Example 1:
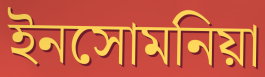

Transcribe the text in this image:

ইনসোমনিয়া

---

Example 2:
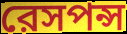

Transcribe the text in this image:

রেসপন্স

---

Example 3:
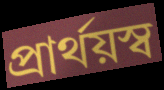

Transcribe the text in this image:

প্রার্থয়স্ব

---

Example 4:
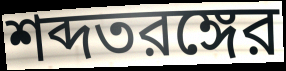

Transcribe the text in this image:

শব্দতরঙ্গের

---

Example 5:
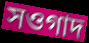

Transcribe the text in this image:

সওগাদ